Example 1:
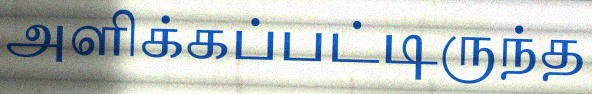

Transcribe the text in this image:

அளிக்கப்பட்டிருந்த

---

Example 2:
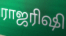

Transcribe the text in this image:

ராஜரிஷி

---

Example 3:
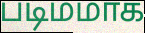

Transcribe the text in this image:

படிமமாக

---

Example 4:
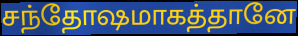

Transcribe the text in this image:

சந்தோஷமாகத்தானே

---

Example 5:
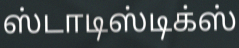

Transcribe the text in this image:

ஸ்டாடிஸ்டிக்ஸ்